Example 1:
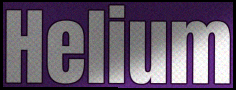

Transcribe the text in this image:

Helium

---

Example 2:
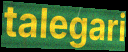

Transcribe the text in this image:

talegari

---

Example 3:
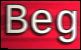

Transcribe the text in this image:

Beg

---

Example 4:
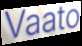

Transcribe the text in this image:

Vaato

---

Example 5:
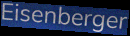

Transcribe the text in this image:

Eisenberger